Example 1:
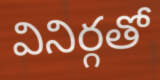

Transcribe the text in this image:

వినిర్గతో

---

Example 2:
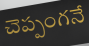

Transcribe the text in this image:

చెప్పంగనే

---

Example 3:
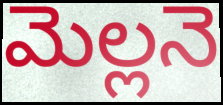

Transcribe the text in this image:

మెల్లనె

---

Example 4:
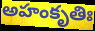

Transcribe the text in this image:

అహంకృతిః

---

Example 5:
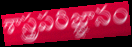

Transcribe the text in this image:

శాస్త్రపరిజ్ఞానం